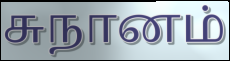
சுநானம்